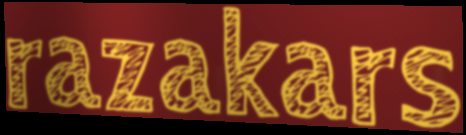
razakars